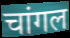
चांगल